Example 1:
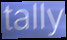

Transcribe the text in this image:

tally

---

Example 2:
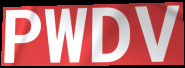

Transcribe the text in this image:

PWDV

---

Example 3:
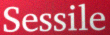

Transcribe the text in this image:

Sessile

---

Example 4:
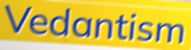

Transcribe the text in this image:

Vedantism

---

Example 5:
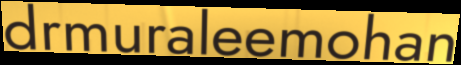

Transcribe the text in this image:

drmuraleemohan